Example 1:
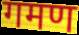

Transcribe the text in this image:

गमण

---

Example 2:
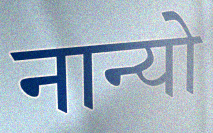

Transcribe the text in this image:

नान्यो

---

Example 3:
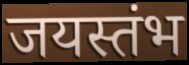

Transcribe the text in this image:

जयस्तंभ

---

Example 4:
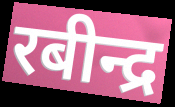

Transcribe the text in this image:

रबीन्द्र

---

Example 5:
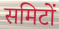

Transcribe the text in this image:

समिटों